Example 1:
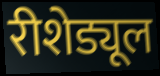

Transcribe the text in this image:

रीशेड्यूल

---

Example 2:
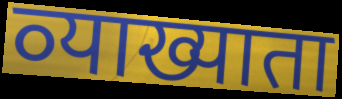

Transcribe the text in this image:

व्‍याख्‍याता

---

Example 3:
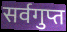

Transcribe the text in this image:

सर्वगुप्त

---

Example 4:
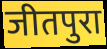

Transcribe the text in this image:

जीतपुरा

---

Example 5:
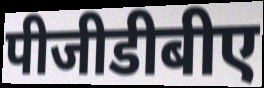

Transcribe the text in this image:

पीजीडीबीए